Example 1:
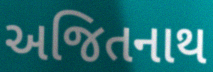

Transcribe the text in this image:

અજિતનાથ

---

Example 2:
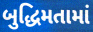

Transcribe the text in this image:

બુદ્ધિમતામાં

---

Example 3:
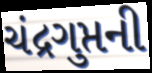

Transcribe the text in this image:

ચંદ્રગુપ્તની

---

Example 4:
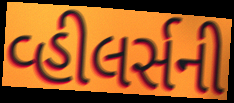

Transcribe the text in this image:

વ્હીલર્સની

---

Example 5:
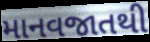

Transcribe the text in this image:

માનવજાતથી